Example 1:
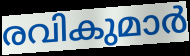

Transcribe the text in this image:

രവികുമാർ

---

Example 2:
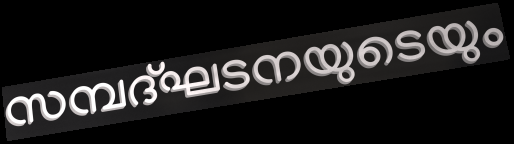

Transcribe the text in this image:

സമ്പദ്ഘടനയുടെയും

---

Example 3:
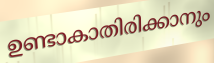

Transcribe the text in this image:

ഉണ്ടാകാതിരിക്കാനും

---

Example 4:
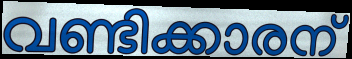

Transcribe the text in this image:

വണ്ടിക്കാരന്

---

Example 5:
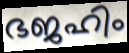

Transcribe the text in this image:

ഭജഹിം